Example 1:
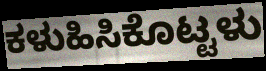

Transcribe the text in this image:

ಕಳುಹಿಸಿಕೊಟ್ಟಳು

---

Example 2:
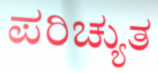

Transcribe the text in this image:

ಪರಿಚ್ಯುತ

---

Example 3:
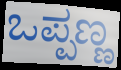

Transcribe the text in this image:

ಒಪ್ಪಣ್ಣ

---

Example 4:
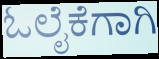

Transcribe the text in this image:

ಓಲೈಕೆಗಾಗಿ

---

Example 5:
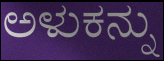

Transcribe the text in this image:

ಅಳುಕನ್ನು